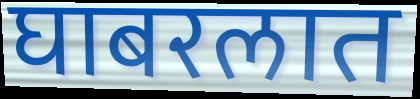
घाबरलात